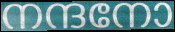
നന്ദനോ